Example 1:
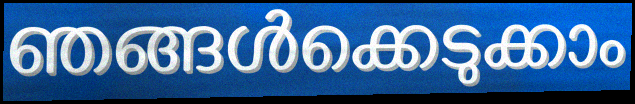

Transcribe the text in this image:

ഞങ്ങൾക്കെടുക്കാം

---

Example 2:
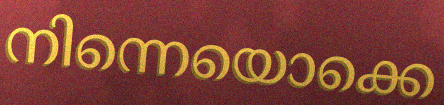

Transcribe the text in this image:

നിന്നെയൊക്കെ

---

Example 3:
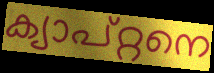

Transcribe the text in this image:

ക്യാപ്റ്റനെ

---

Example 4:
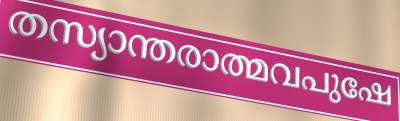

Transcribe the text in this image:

തസ്യാന്തരാത്മവപുഷേ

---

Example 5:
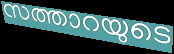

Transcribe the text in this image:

സത്താറയുടെ